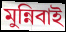
মুন্নিবাই